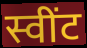
स्वींट